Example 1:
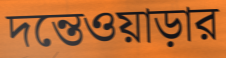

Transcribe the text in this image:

দন্তেওয়াড়ার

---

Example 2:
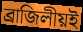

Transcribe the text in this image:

ব্রাজিলীয়ই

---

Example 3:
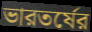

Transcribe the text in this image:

ভারতর্ষের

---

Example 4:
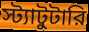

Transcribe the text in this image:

স্ট্যাটুটারি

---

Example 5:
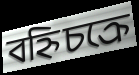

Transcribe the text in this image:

বহ্নিচক্রে